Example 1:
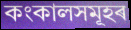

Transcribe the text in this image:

কংকালসমূহৰ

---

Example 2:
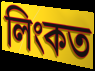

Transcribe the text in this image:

লিংকত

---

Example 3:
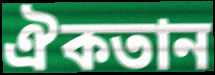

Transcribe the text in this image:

ঐকতান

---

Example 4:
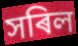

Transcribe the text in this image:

সৰিল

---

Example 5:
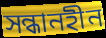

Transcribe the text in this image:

সন্ধানহীন